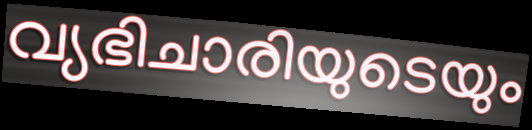
വ്യഭിചാരിയുടെയും